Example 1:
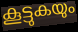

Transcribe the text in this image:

കൂട്ടുകയും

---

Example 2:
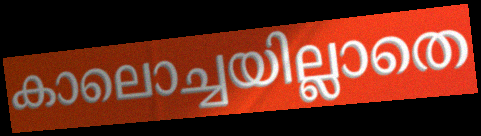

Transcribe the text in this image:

കാലൊച്ചയില്ലാതെ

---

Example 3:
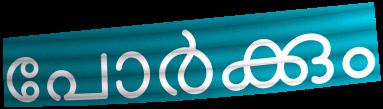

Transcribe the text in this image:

പോർക്കും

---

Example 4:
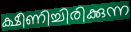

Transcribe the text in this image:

ക്ഷീണിച്ചിരിക്കുന്ന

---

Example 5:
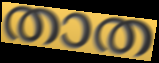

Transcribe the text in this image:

താത